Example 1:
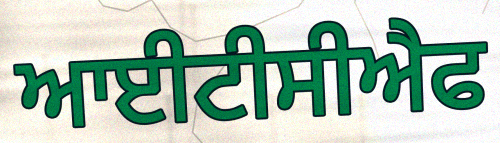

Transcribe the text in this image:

ਆਈਟੀਸੀਐਫ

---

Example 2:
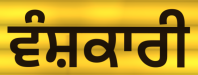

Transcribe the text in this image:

ਵੰਸ਼ਕਾਰੀ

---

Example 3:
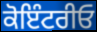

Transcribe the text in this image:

ਕੋਇੰਟਰੀਓ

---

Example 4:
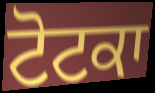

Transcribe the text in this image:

ਟੋਟਕਾ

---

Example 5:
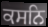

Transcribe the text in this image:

ਕਸਨਿ